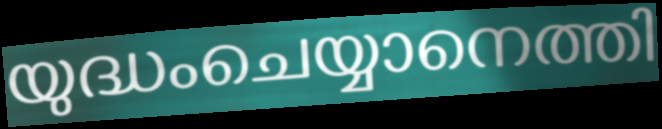
യുദ്ധംചെയ്യാനെത്തി